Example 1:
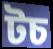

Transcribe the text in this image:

টচ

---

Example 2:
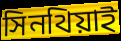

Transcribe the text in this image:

সিনথিয়াই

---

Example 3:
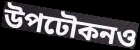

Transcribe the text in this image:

উপঢৌকনও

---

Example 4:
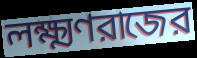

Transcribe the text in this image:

লক্ষ্মণরাজের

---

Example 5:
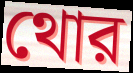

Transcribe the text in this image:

থোর